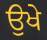
ਉਖੇ